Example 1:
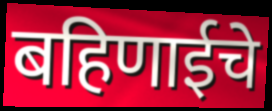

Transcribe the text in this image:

बहिणाईचे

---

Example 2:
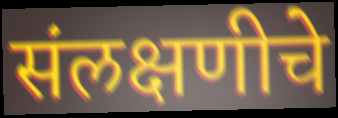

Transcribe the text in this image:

संलक्षणीचे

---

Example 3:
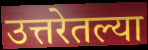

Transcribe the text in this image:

उत्तरेतल्या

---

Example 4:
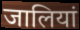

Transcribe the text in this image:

जालियां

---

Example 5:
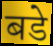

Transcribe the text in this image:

बडे